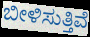
ಬೀಳಿಸುತ್ತಿವೆ